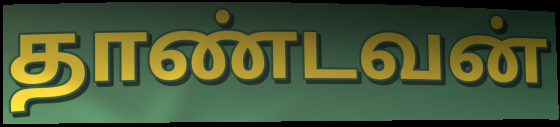
தாண்டவன்